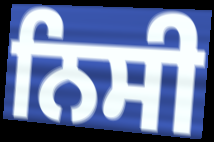
ਨਿਸੀ